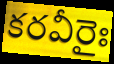
కరవీరైః